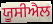
ਯੂਸੀਐਲ